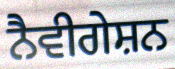
ਨੈਵੀਗੇਸ਼ਨ